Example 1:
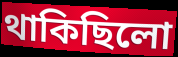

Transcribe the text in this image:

থাকিছিলো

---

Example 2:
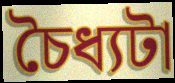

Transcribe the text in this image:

চৈধ্যটা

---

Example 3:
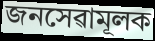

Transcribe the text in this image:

জনসেৱামূলক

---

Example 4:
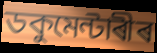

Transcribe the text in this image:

ডকুমেন্টাৰীৰ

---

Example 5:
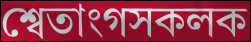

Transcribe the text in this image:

শ্বেতাংগসকলক